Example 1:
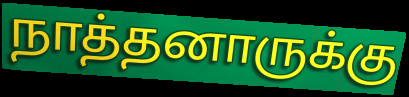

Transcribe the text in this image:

நாத்தனாருக்கு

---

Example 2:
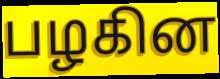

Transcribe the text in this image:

பழகின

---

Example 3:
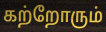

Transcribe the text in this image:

கற்றோரும்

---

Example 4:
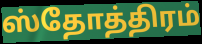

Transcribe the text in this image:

ஸ்தோத்திரம்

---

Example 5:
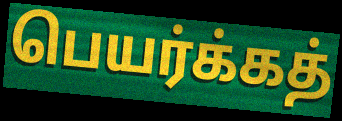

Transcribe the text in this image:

பெயர்க்கத்